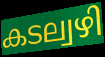
കടല്വഴി